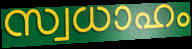
സ്വധാഹം